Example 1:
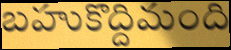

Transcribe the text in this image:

బహుకొద్దిమంది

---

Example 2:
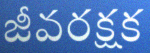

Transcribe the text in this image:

జీవరక్షక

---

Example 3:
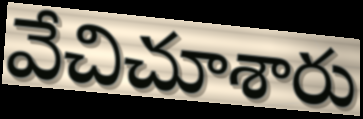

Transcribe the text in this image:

వేచిచూశారు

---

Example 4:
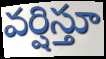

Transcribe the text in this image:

వర్షిస్తూ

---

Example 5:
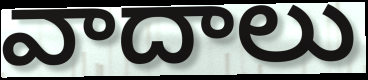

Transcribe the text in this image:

వాదాలు